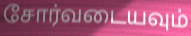
சோர்வடையவும்